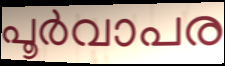
പൂർവാപര